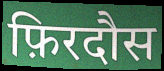
फ़िरदौस